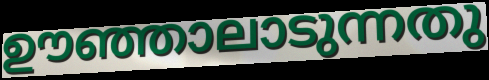
ഊഞ്ഞാലാടുന്നതു